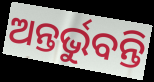
ଅନ୍ତର୍ଭୁବନ୍ତି